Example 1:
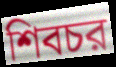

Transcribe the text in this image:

শিবচর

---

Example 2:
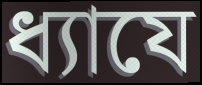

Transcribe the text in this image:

ধ্যাযে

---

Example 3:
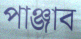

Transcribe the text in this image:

পাঞ্জাব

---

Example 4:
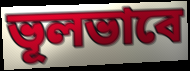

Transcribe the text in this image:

ভূলভাবে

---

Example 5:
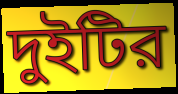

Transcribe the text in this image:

দুইটির